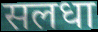
सलधा